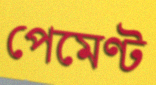
পেমেণ্ট